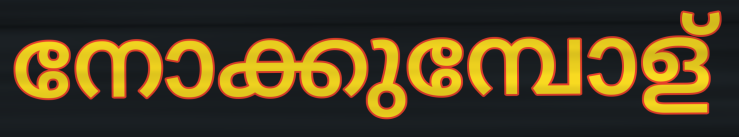
നോക്കുമ്പോള്